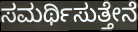
ಸಮರ್ಥಿಸುತ್ತೇನೆ